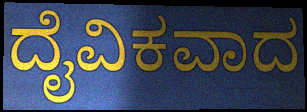
ದೈವಿಕವಾದ